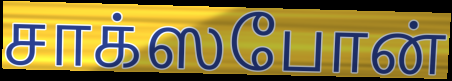
சாக்ஸபோன்